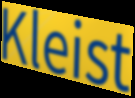
Kleist